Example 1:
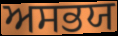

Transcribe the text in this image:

ਅਸਭਯ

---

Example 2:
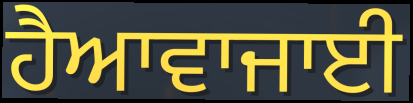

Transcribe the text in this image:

ਹੈਆਵਾਜਾਈ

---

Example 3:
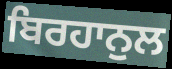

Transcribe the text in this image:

ਬਿਰਹਾਨੁਲ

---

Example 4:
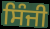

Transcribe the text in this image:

ਸਿੰਜੀ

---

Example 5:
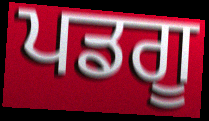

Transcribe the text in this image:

ਪਡਗੂ